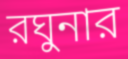
রঘুনার